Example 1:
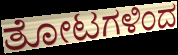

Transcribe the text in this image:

ತೋಟಗಳಿಂದ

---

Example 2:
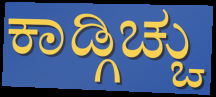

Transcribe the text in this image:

ಕಾಡ್ಗಿಚ್ಚು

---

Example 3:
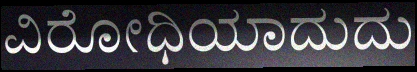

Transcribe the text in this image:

ವಿರೋಧಿಯಾದುದು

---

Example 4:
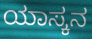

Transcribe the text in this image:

ಯಾಸ್ಕನ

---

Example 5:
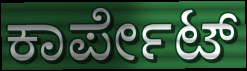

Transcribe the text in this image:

ಕಾರ್ಪೇಟ್